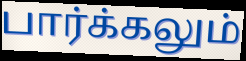
பார்க்கலும்